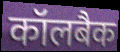
कॉलबैक